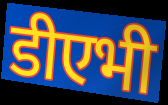
डीएभी